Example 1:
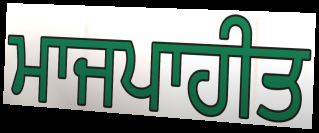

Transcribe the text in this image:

ਮਾਜਪਾਹੀਤ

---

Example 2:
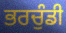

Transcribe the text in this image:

ਭਰਚੁੰਡੀ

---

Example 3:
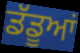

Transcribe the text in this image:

ਡੱਡੂਆਂ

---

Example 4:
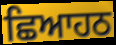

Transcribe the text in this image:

ਛਿਆਹਠ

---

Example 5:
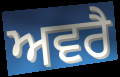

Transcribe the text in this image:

ਅਵਰੈ